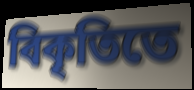
বিকৃতিতে